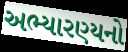
અભ્યારણ્યનો